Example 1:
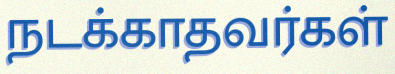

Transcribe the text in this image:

நடக்காதவர்கள்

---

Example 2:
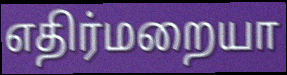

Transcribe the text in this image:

எதிர்மறையா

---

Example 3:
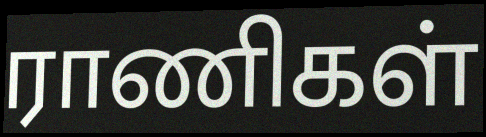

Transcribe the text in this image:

ராணிகள்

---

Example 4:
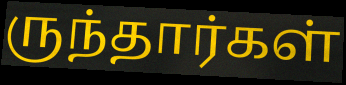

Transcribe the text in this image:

ருந்தார்கள்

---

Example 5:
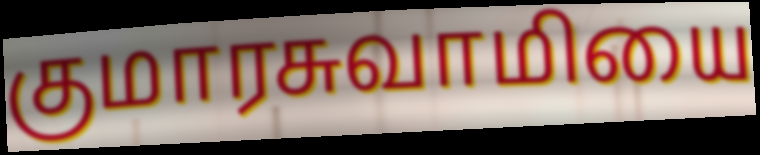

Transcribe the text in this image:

குமாரசுவாமியை